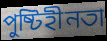
পুষ্টিহীনতা